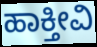
ಹಾಕ್ತೀವಿ